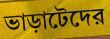
ভাড়াটেদের